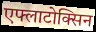
एफ्लाटोक्सिन